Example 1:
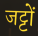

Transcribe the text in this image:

जट्टों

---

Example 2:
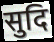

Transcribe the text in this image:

सुदि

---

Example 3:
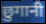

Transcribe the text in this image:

छुगानी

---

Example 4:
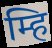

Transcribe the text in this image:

म्हि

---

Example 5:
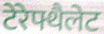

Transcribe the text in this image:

टेरेफ्थैलेट